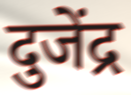
दुजेंद्र